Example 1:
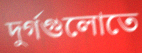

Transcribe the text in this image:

দুর্গগুলোতে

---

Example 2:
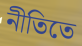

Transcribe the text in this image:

নীতিতে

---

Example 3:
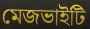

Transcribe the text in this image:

মেজভাইটি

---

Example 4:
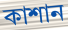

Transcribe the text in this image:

কাশান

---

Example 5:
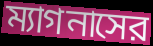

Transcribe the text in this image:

ম্যাগনাসের